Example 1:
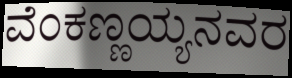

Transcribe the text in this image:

ವೆಂಕಣ್ಣಯ್ಯನವರ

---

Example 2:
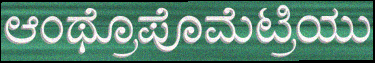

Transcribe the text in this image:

ಆಂಥ್ರೊಪೊಮೆಟ್ರಿಯು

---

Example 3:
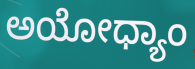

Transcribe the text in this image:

ಅಯೋಧ್ಯಾಂ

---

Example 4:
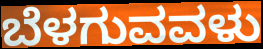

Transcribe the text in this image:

ಬೆಳಗುವವಳು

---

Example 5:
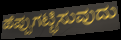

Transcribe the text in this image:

ಹೆಪ್ಪುಗಟ್ಟಿಸುವುದು